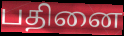
பதினை